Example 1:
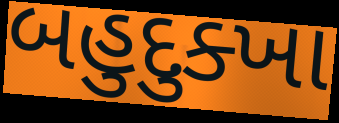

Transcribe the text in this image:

બહુદુક્ખા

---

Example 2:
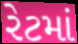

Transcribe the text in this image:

રેટમાં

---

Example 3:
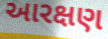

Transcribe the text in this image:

આરક્ષણ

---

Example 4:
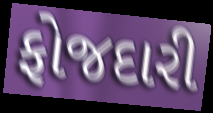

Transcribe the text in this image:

ફોજદારી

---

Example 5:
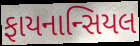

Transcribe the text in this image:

ફાયનાન્સિયલ